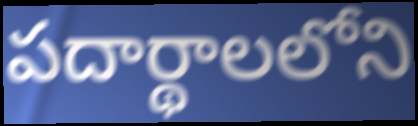
పదార్థాలలోని